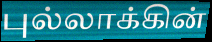
புல்லாக்கின்